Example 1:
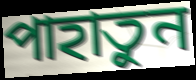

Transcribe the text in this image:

পাহাতুন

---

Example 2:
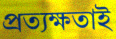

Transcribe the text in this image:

প্রত্যক্ষতাই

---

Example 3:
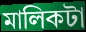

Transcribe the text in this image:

মালিকটা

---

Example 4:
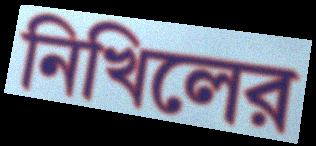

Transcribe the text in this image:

নিখিলের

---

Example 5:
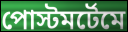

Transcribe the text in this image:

পোস্টমর্টেমে